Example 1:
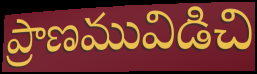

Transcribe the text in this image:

ప్రాణమువిడిచి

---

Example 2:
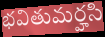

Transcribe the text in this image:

భవితుమర్హసి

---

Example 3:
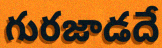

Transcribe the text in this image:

గురజాడదే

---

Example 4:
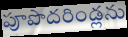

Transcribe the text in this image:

పూపొదరిండ్లను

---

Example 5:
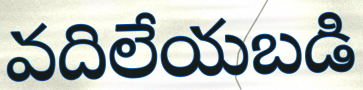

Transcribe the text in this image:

వదిలేయబడి